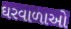
ઘરવાળાઓ